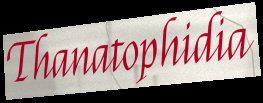
Thanatophidia